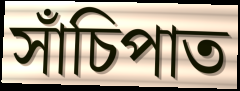
সাঁচিপাত